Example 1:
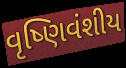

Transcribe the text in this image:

વૃષ્ણિવંશીય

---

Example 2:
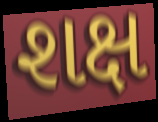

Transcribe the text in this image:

શક્ષ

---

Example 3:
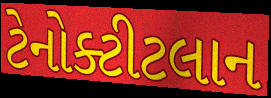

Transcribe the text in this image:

ટેનોક્ટીટલાન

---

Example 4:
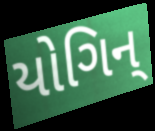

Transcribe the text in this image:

યોગિન્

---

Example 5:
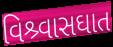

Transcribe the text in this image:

વિશ્ર્વાસઘાત